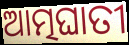
ଆତ୍ମଘାତୀ